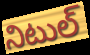
నిటుల్